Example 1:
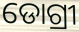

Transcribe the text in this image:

ଡୋଗ୍ରୀ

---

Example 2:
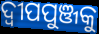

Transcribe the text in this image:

ଦ୍ଵୀପପୁଞ୍ଜକୁ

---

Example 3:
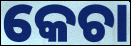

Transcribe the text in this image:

କେଚା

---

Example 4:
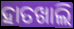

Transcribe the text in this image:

ହାତଖାଲି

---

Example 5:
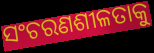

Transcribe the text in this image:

ସଂଚରଣଶୀଳତାକୁ